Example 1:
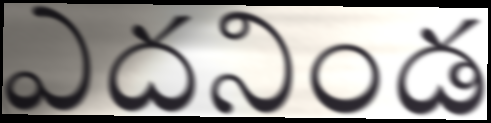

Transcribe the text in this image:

ఎదనిండ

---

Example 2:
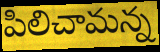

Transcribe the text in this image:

పిలిచామన్న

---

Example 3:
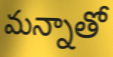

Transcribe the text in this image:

మన్నాతో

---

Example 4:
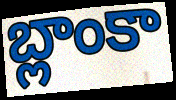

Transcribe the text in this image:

బ్లాంకా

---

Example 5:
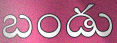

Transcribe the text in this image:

బండు